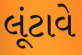
લૂંટાવે